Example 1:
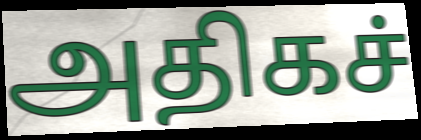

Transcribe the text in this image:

அதிகச்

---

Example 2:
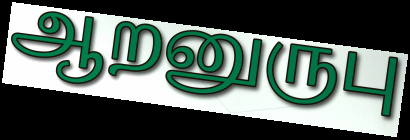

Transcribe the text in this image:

ஆறனுருபு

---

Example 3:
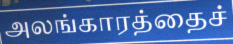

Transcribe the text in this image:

அலங்காரத்தைச்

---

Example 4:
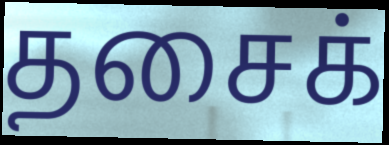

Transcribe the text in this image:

தசைக்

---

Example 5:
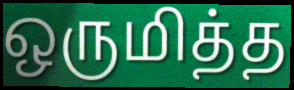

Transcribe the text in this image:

ஒருமித்த